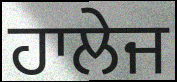
ਹਾਲੇਜ